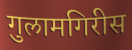
गुलामगिरीस